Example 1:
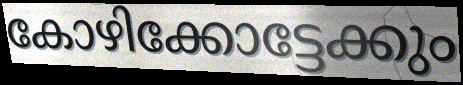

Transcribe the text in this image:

കോഴിക്കോട്ടേക്കും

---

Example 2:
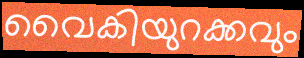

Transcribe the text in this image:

വൈകിയുറക്കവും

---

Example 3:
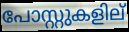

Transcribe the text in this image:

പോസ്റ്റുകളില്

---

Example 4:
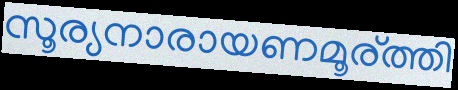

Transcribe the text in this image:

സൂര്യനാരായണമൂര്ത്തി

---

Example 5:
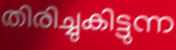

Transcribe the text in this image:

തിരിച്ചുകിട്ടുന്ന